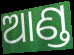
ଆଣ୍ଡ